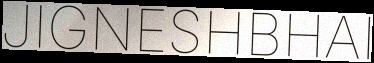
JIGNESHBHAI